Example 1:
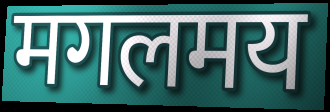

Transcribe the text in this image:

मगलमय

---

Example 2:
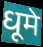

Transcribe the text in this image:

धूमे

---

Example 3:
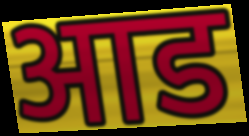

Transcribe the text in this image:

आड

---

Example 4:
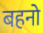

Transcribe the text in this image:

बहनो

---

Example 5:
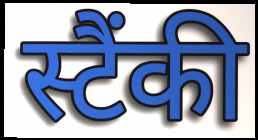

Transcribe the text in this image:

स्टैंकी